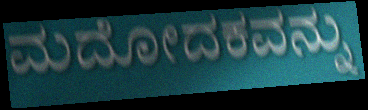
ಮದೋದಕವನ್ನು